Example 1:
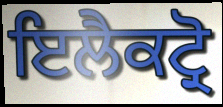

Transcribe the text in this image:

ਇਲੈਕਟ੍ਰੋ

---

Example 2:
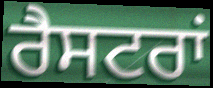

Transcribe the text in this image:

ਰੈਸਟਰਾਂ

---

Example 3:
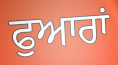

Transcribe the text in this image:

ਫੁਆਰਾਂ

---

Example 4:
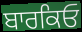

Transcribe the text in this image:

ਬਾਰਕਿਓ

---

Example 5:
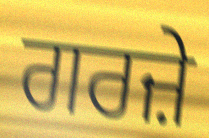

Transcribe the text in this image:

ਗਰਜ਼ੇ